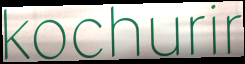
kochurir